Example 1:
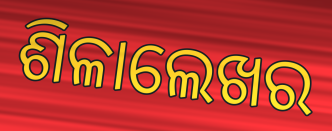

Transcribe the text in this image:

ଶିଳାଲେଖର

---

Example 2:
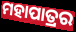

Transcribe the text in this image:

ମହାପାତ୍ରର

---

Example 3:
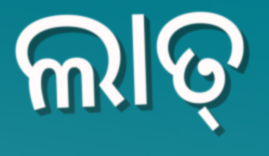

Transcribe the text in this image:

ଲାତ୍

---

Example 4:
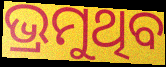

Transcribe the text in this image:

ଭ୍ରମୁଥିବ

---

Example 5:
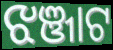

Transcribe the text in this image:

ଝଞ୍ଜାଟ